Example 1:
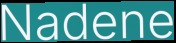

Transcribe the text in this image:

Nadene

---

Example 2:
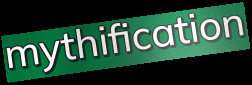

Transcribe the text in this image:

mythification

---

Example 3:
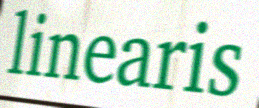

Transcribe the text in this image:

linearis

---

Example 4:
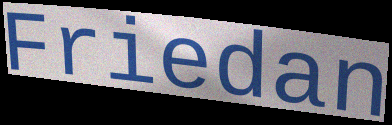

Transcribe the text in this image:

Friedan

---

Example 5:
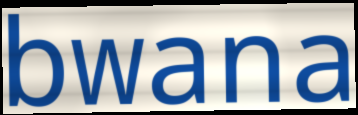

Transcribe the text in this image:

bwana